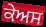
ਕੇਅਸ